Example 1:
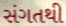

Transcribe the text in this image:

સંગતથી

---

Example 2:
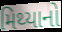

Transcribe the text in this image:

મિથ્યાનો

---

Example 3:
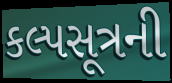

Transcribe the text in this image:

કલ્પસૂત્રની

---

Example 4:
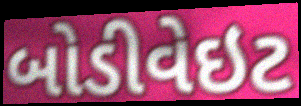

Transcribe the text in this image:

બોડીવેઇટ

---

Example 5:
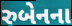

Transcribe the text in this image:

રુબેનના